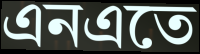
এনএতে